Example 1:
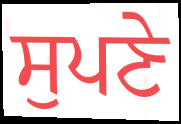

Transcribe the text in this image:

ਸੁਪਣੇ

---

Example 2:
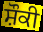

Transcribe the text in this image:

ਸ਼ੌਕੀ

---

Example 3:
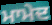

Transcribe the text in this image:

ਮਾਮੇਦ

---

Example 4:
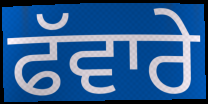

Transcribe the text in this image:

ਫੱਵਾਰੇ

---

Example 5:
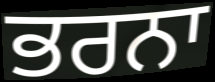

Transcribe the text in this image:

ਭਰਨਾ